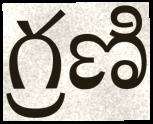
గ్రణి